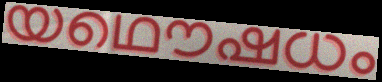
യഥൌഷധം